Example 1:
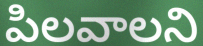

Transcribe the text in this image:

పిలవాలని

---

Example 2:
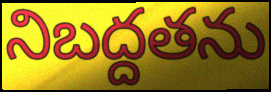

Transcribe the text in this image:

నిబద్దతను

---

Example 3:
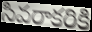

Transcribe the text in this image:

సివరాకరికి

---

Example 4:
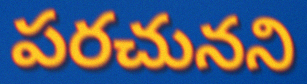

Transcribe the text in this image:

పరచునని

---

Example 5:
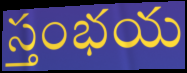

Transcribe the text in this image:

స్తంభయ